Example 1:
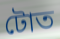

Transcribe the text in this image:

টোত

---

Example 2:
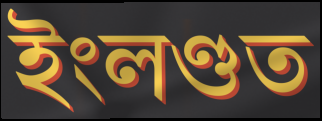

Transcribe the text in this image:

ইংলণ্ডত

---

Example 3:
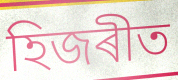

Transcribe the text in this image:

হিজৰীত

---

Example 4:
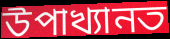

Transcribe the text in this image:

উপাখ্যানত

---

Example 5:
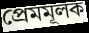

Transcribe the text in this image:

প্ৰেমমূলক